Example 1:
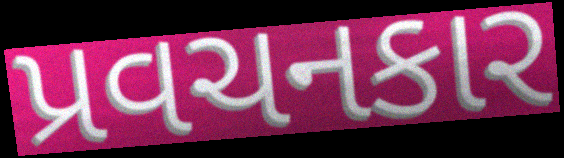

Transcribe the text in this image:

પ્રવચનકાર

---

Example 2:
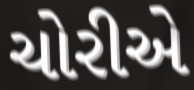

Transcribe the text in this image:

ચોરીએ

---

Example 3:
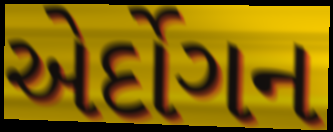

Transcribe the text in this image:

એર્દોગન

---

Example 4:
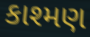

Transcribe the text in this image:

કાશ્મણ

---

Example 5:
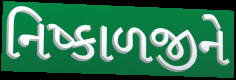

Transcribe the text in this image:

નિષ્કાળજીને